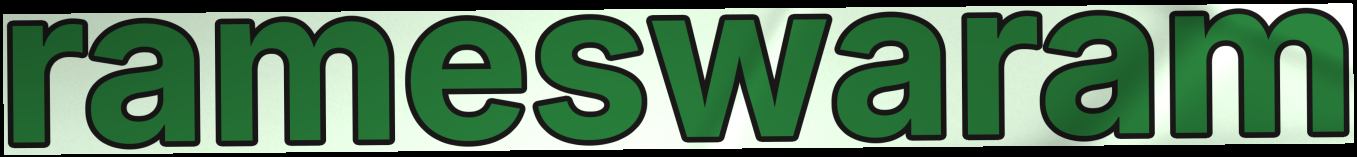
rameswaram